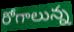
రోగాలున్న